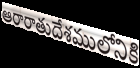
ఆరారాతుదేశములోనికి